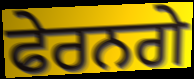
ਫੇਰਨਗੇ